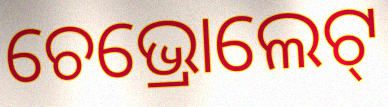
ଚେଭ୍ରୋଲେଟ୍